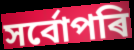
সৰ্বোপৰি